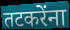
तटकरेंना